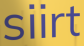
siirt